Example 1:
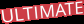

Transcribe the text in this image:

ULTIMATE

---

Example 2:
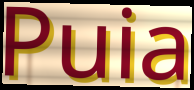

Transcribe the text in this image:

Puia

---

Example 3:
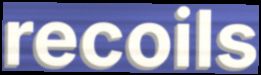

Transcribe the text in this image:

recoils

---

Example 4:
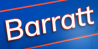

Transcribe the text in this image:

Barratt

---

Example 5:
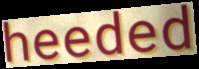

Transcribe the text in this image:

heeded